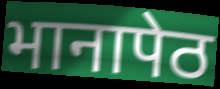
भानापेठ